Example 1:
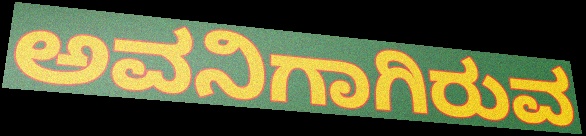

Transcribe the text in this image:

ಅವನಿಗಾಗಿರುವ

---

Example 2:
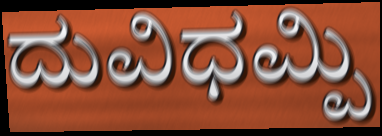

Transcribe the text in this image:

ದುವಿಧಮ್ಪಿ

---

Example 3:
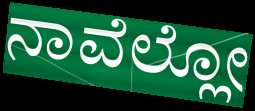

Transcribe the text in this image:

ನಾವೆಲ್ಲೋ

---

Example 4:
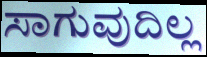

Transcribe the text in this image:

ಸಾಗುವುದಿಲ್ಲ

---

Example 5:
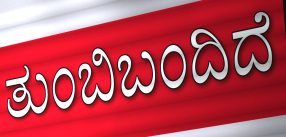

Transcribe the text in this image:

ತುಂಬಿಬಂದಿದೆ